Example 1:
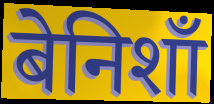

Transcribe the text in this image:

बेनिशाँ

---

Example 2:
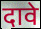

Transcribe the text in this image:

दावे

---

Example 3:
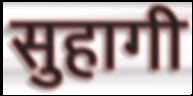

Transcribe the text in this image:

सुहागी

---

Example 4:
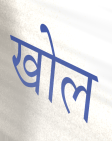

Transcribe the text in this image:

खोल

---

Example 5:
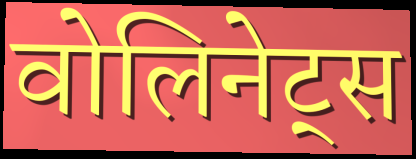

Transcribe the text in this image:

वोलिनेट्स